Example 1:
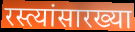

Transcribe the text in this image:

रस्त्यांसारख्या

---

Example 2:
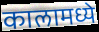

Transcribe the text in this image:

कालामध्ये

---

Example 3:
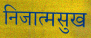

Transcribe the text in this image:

निजात्मसुख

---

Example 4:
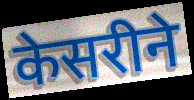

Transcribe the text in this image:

केसरीने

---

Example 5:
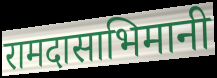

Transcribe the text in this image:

रामदासाभिमानी